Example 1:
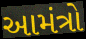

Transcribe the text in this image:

આમંત્રો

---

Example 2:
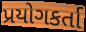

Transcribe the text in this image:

પ્રયોગકર્તા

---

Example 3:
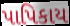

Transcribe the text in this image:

પાપિકાય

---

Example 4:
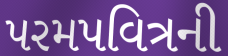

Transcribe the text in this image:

પરમપવિત્રની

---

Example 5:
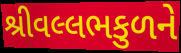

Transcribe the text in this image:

શ્રીવલ્લભકુળને